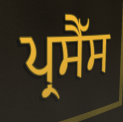
ਪ੍ਰਸੈੱਸ